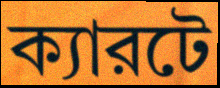
ক্যারটে